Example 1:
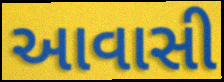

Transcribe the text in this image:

આવાસી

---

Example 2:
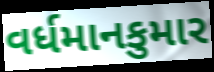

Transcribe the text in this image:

વર્ધમાનકુમાર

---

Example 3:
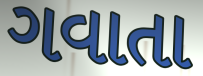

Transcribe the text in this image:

ગવાતા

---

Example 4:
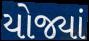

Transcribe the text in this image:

યોજ્યાં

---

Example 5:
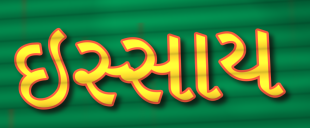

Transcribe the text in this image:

ઇસ્સાય